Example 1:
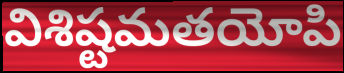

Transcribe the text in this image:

విశిష్టమతయోపి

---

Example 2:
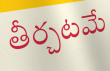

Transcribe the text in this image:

తీర్చటమే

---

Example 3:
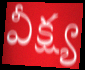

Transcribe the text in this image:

వీక్ష్య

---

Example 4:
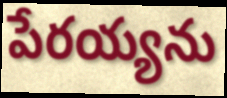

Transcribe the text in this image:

పేరయ్యను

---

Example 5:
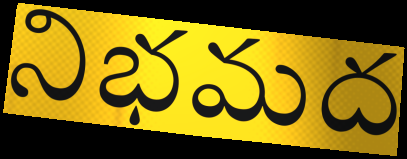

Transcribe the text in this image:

నిభమద